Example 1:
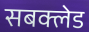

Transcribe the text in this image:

सबक्लेड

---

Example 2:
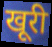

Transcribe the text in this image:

खूरी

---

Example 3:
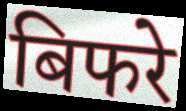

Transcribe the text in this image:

बिफरे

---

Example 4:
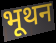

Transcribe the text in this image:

भूथन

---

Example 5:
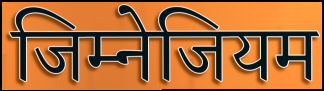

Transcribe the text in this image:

जिम्नेजियम